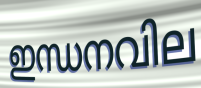
ഇന്ധനവില